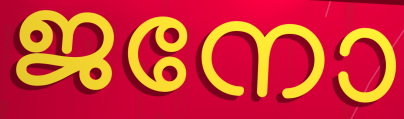
ജനോ